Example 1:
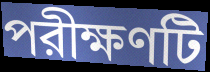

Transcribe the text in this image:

পরীক্ষণটি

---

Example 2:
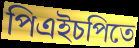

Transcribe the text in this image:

পিএইচপিতে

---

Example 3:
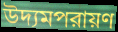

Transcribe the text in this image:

উদ্যমপরায়ণ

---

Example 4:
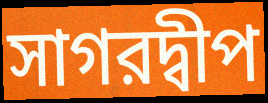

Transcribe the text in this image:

সাগরদ্বীপ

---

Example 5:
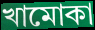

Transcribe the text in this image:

খামোকা